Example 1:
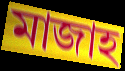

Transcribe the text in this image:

মাজাহ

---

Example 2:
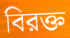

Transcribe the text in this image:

বিরক্ত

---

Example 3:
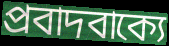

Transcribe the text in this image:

প্রবাদবাক্যে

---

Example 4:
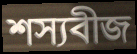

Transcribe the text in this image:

শস্যবীজ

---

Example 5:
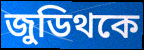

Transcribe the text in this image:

জুডিথকে